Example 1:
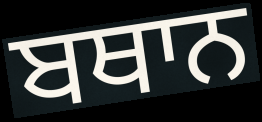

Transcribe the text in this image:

ਬਥਾਨ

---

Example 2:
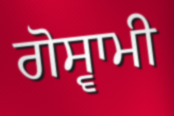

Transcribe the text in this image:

ਗੋਸ੍ਵਾਮੀ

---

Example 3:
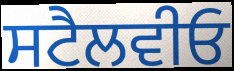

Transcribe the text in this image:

ਸਟੈਲਵੀਓ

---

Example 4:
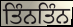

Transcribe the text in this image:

ਤਿੰਨਤਿੰਨ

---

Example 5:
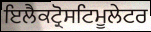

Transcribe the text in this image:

ਇਲੈਕਟ੍ਰੋਸਟਿਮੂਲੇਟਰ